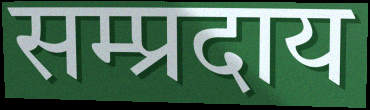
सम्प्रदाय